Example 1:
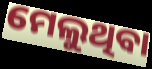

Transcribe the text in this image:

ମେଲୁଥିବା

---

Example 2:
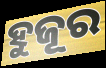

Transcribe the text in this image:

ହୁଜୂର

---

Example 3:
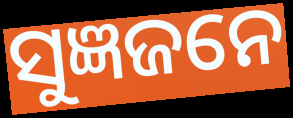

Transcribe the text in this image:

ସୁଜ୍ଞଜନେ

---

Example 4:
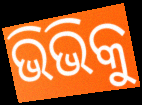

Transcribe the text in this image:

ଭିଭିକୁ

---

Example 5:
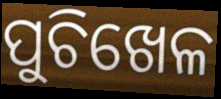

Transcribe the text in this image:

ପୁଚିଖେଳ